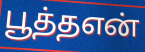
பூத்தஎன்